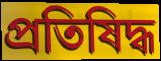
প্রতিষিদ্ধ